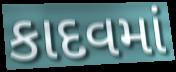
કાદવમાં